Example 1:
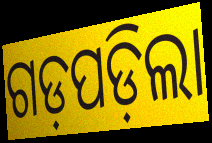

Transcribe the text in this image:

ଗଡ଼ପଡ଼ିଲା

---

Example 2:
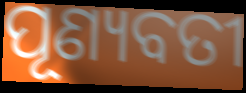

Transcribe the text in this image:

ପୂଣ୍ୟବତୀ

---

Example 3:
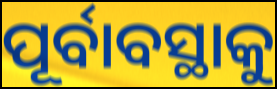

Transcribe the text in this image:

ପୂର୍ବାବସ୍ଥାକୁ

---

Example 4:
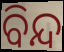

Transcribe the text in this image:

ବିନ୍ଦ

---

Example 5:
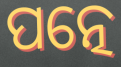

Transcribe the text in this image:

ପତ୍ନେ